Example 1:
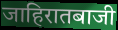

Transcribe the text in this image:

जाहिरातबाजी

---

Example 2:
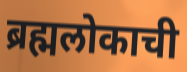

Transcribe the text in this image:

ब्रह्मलोकाची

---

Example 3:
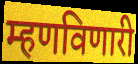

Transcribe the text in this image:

म्हणविणारी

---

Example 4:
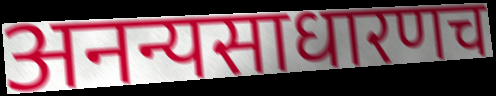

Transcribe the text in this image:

अनन्यसाधारणच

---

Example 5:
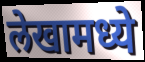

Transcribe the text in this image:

लेखामध्ये